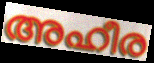
അഹീര